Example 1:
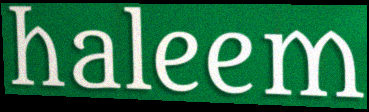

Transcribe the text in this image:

haleem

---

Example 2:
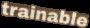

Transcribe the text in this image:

trainable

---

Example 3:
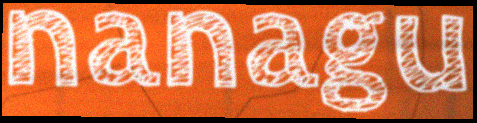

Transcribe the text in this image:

nanagu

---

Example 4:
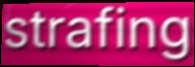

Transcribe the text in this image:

strafing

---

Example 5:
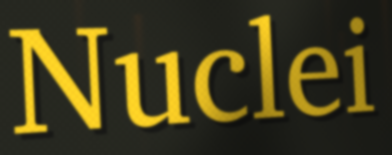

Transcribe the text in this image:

Nuclei